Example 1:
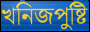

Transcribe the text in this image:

খনিজপুষ্টি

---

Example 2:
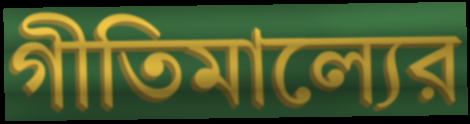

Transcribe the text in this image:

গীতিমাল্যের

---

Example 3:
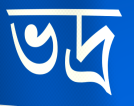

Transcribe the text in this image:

ভদ্র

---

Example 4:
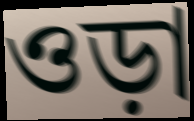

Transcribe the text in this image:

ওড়া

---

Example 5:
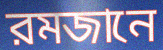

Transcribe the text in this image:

রমজানে